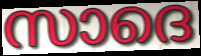
സാദെ